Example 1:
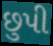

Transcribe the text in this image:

છુપી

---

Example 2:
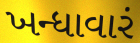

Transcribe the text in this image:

ખન્ધાવારં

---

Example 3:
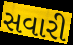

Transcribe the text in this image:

સવારી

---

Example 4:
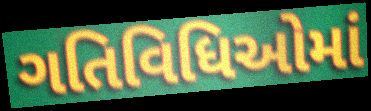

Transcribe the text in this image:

ગતિવિધિઓમાં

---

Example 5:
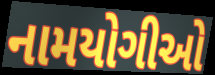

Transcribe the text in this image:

નામયોગીઓ